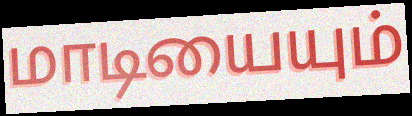
மாடியையும்